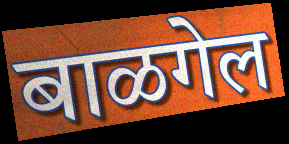
बाळगेल